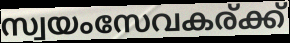
സ്വയംസേവകര്ക്ക്